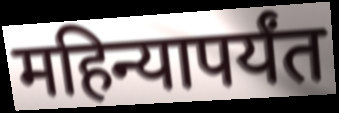
महिन्यापर्यंत